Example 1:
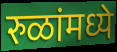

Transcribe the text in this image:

रुळांमध्ये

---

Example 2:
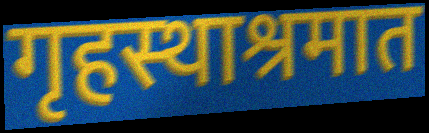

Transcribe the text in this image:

गृहस्थाश्रमात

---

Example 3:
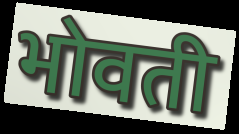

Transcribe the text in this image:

भोवती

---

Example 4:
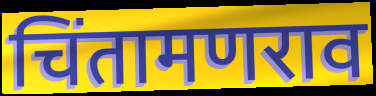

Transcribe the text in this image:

चिंतामणराव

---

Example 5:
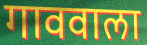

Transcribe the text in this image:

गाववाला